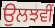
ਉਲਝਵੀਂ